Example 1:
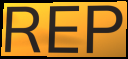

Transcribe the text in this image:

REP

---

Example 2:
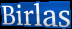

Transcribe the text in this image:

Birlas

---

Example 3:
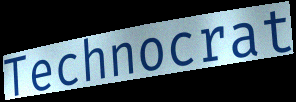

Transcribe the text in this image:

Technocrat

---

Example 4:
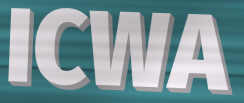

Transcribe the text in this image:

ICWA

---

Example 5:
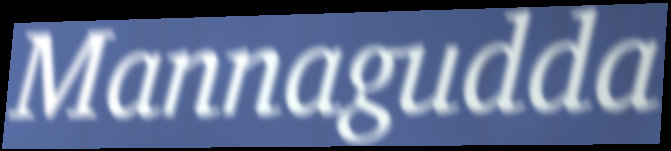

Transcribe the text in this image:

Mannagudda